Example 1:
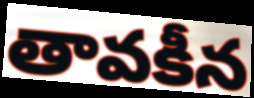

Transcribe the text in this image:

తావకీన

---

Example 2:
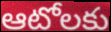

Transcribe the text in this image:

ఆటోలకు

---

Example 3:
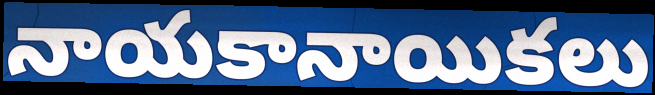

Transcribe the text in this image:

నాయకానాయికలు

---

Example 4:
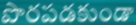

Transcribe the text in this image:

పొరపడకుండా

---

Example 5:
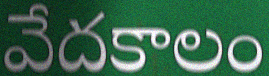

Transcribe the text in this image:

వేదకాలం